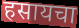
हसायचा